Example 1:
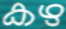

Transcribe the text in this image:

കഴ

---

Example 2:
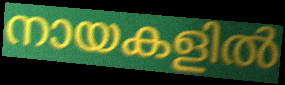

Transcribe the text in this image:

നായകളിൽ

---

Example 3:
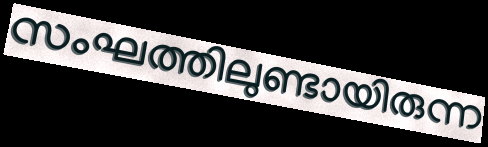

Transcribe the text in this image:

സംഘത്തിലുണ്ടായിരുന്ന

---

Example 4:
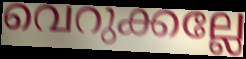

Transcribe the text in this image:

വെറുക്കല്ലേ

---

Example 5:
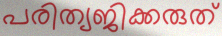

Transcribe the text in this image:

പരിത്യജിക്കരുത്